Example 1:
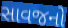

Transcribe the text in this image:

સાવજનો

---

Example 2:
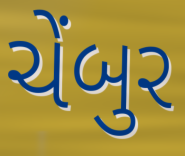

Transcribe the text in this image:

ચેંબુર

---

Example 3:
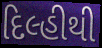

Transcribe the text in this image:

દિલ્હીથી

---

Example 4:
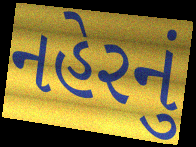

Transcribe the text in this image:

નહેરનું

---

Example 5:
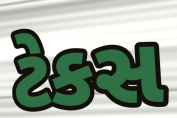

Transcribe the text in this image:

ટેકસ